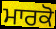
ਮਾਰਕੋ